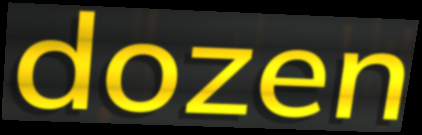
dozen